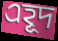
এহূদ